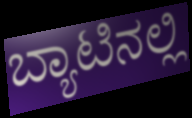
ಬ್ಯಾಟಿನಲ್ಲಿ